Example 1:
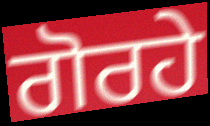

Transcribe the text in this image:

ਗੋਰਹੇ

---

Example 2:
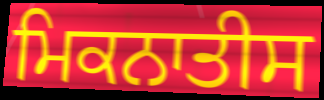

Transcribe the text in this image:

ਮਿਕਨਾਤੀਸ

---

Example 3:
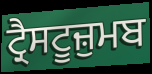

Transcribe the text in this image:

ਟ੍ਰੈਸਟੂਜ਼ੁਮਬ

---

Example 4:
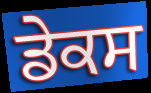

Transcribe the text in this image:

ਡੇਕਸ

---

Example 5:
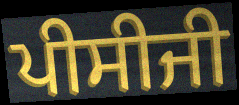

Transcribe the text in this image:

ਪੀਸੀਜੀ